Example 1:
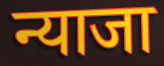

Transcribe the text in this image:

न्याजा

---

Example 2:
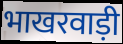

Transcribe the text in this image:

भाखरवाड़ी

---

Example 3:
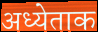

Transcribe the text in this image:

अध्येताक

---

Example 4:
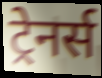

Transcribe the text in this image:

ट्रेनर्स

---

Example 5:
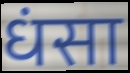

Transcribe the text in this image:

धंसा